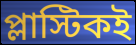
প্লাস্টিকই